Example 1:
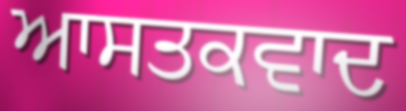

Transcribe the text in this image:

ਆਸਤਕਵਾਦ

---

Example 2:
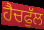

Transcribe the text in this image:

ਹੈਚਫੁੱਲ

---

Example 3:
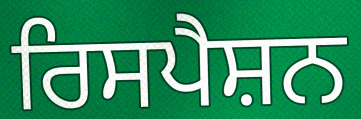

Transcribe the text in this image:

ਰਿਸਪੈਸ਼ਨ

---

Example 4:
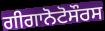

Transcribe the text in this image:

ਗੀਗਾਨੋਟੋਸੌਰਸ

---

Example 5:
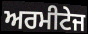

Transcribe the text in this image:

ਅਰਮੀਟੇਜ